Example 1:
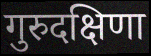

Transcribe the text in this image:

गुरुदक्षिणा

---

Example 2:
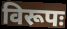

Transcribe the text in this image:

विरूपः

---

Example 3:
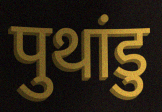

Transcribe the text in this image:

पुथांडु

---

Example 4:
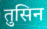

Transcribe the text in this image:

तुसिन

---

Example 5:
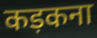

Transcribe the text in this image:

कड़कना